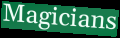
Magicians